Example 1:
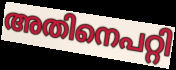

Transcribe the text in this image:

അതിനെപറ്റി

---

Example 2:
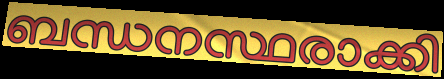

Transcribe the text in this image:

ബന്ധനസ്ഥരാക്കി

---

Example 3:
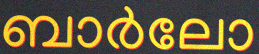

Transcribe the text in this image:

ബാർലോ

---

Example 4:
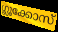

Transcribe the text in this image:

ഗ്ലൂക്കോസ്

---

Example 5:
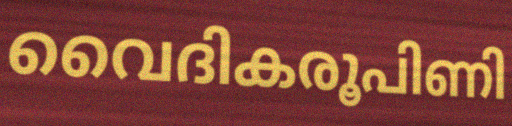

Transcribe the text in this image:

വൈദികരൂപിണി